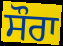
ਸੌਰਾ